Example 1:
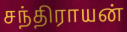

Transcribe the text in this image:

சந்திராயன்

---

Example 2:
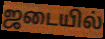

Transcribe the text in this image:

ஜடையில்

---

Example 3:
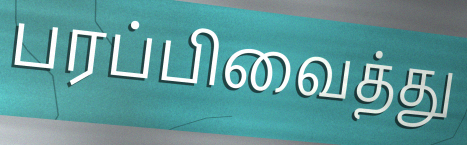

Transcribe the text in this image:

பரப்பிவைத்து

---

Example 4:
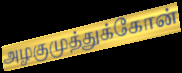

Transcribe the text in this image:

அழகுமுத்துக்கோன்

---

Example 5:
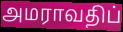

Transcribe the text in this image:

அமராவதிப்